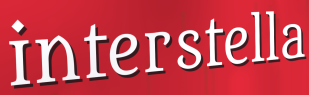
interstella